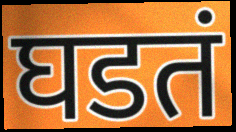
घडतं